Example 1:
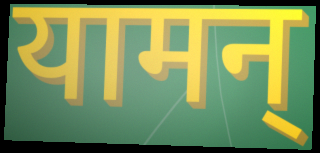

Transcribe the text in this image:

यामन्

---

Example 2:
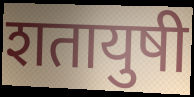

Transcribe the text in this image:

शतायुषी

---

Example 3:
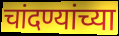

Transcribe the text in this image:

चांदण्यांच्या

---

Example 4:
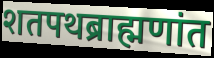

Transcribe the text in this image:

शतपथब्राह्मणांत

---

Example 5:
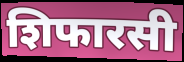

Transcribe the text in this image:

शिफारसी